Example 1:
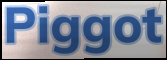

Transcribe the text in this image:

Piggot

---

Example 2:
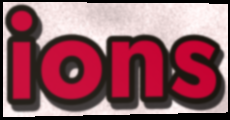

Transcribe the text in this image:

ions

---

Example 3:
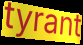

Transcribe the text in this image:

tyrant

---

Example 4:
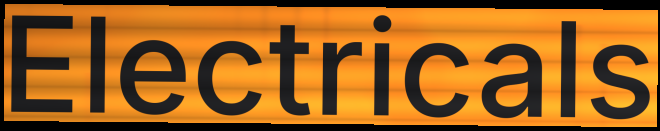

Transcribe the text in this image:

Electricals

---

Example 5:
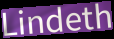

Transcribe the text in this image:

Lindeth